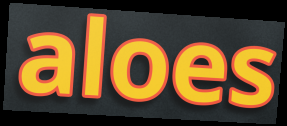
aloes